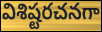
విశిష్టరచనగా